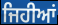
ਜਿਹੀਆਂ